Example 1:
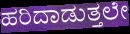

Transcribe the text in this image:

ಹರಿದಾಡುತ್ತಲೇ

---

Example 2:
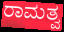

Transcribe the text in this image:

ರಾಮತ್ವ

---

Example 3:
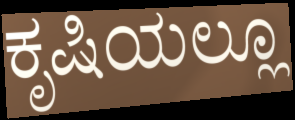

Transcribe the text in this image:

ಕೃಷಿಯಲ್ಲೂ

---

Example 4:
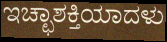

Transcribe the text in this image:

ಇಚ್ಛಾಶಕ್ತಿಯಾದಳು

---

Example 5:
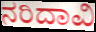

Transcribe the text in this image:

ನರಿದಾವಿ